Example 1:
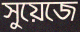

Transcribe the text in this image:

সুয়েজে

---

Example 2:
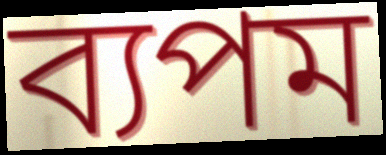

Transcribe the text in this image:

ব্যপম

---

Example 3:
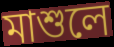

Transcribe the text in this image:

মাশুলে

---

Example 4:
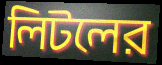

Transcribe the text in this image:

লিটলের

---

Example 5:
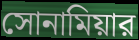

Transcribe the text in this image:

সোনামিয়ার